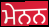
ਮੇਨਨ